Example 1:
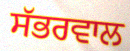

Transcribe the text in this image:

ਸੱਭਰਵਾਲ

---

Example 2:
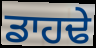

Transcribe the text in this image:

ਡਾਹਢੇ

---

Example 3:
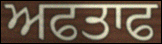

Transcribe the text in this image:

ਅਫਤਾਫ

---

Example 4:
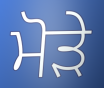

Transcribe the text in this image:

ਮੋੜੇ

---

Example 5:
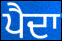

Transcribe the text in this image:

ਪੈਦਾ